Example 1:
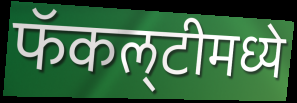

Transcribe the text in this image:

फॅकल्टीमध्ये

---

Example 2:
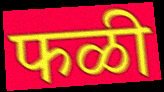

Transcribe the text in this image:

फळी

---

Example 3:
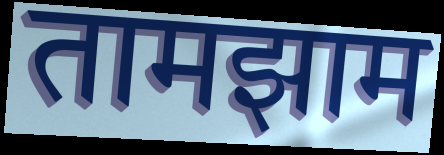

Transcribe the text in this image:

तामझाम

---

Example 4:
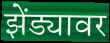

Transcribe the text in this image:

झेंड्यावर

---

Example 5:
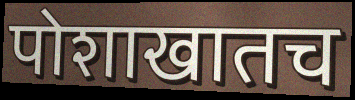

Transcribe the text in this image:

पोशाखातच